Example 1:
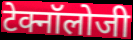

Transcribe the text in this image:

टेक्नॉलोजी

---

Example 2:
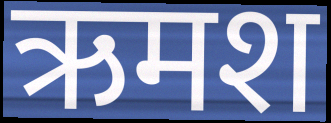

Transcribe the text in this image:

ऋमश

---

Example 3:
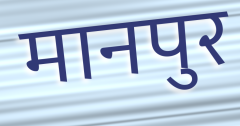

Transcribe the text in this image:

मानपुर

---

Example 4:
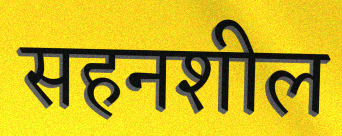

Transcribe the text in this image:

सहनशील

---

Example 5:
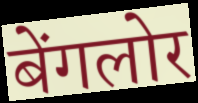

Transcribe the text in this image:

बेंगलोर